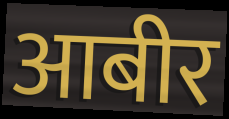
आबीर